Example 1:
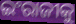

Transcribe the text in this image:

ଇଂରାଜୀକୁ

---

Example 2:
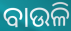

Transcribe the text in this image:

ବାଉଳି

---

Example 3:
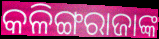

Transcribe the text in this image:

କଳିଙ୍ଗରାଜାଙ୍କ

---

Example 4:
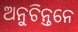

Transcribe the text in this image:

ଅନୁଚିନ୍ତନେ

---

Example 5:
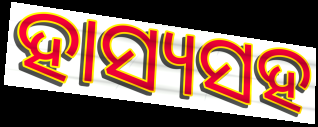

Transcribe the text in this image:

ହାସ୍ୟସହ